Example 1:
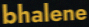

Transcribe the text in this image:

bhalene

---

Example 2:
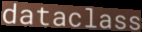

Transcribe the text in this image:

dataclass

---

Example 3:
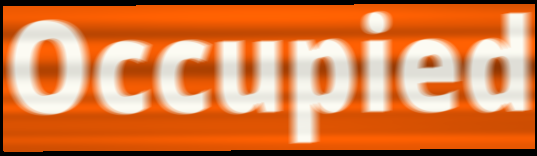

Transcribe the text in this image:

Occupied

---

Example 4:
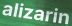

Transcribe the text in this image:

alizarin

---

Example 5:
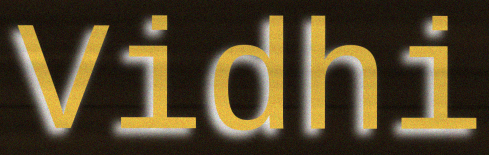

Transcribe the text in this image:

Vidhi